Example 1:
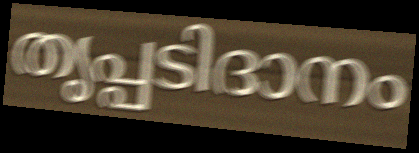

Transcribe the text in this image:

തൃപ്പടിദാനം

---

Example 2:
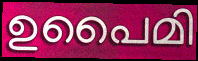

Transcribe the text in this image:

ഉപൈമി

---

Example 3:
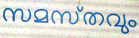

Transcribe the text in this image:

സമസ്‌തവും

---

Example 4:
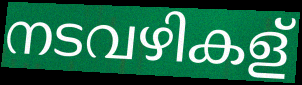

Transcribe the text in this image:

നടവഴികള്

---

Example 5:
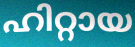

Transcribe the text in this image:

ഹിറ്റായ